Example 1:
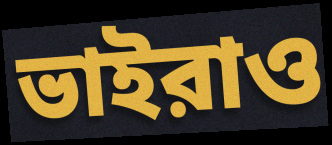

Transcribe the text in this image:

ভাইরাও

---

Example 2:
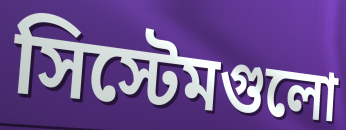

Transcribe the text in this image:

সিস্টেমগুলো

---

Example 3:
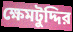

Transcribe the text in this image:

ক্ষেমটুদ্দির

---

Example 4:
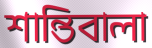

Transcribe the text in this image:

শান্তিবালা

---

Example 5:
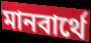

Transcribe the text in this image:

মানবার্থে